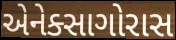
એનેક્સાગોરાસ